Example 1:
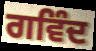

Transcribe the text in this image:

ਗਵਿੰਦ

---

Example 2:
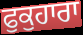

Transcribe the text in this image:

ਫੁਕੁਹਾਰਾ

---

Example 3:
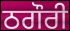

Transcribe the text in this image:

ਠਗੌਰੀ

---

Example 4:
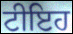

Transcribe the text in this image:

ਟੀਇਹ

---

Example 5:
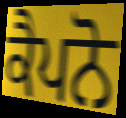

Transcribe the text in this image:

ਕੈਪਨੋ